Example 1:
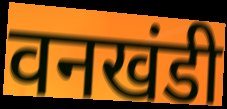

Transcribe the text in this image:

वनखंडी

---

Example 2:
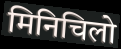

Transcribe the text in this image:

मिनिचिलो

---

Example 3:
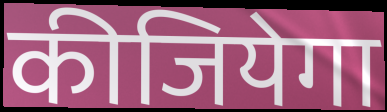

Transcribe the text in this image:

कीजियेगा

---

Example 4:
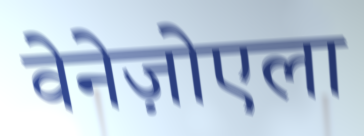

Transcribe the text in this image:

वेनेज़ोएला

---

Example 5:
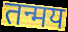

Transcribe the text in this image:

तन्मय